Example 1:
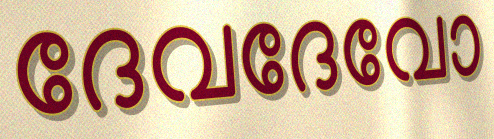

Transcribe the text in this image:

ദേവദേവോ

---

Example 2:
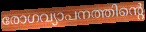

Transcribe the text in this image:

രോഗവ്യാപനത്തിന്റെ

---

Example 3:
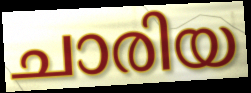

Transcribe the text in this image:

ചാരിയ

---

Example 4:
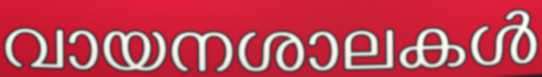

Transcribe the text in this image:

വായനശാലകൾ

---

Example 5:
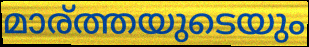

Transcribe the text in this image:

മാര്ത്തയുടെയും